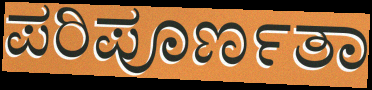
ಪರಿಪೂರ್ಣತಾ